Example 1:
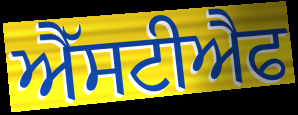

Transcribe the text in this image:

ਐੱਸਟੀਐਫ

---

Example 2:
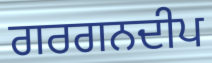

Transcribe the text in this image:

ਗਰਗਨਦੀਪ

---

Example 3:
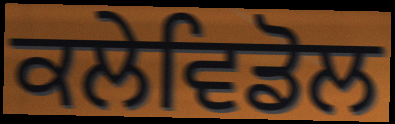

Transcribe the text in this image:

ਕਲੇਵਿਡੋਲ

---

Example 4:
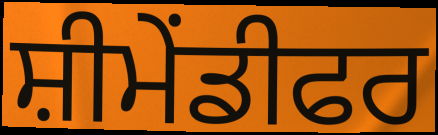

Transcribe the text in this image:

ਸ਼ੀਮੇਂਡੀਫਰ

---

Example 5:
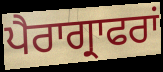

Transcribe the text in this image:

ਪੈਰਾਗ੍ਰਾਫਰਾਂ